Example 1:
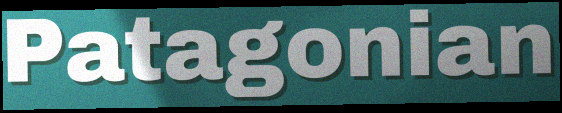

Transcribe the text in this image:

Patagonian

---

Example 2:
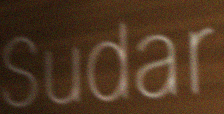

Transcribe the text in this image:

Sudar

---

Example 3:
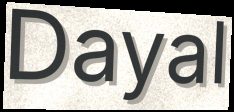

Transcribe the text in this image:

Dayal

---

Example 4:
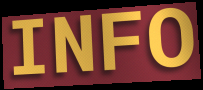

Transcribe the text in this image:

INFO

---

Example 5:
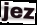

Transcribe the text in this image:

jez